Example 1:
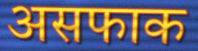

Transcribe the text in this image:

असफाक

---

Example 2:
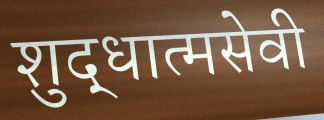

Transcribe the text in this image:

शुद्धात्मसेवी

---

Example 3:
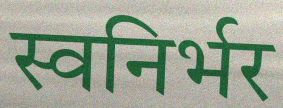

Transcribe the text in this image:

स्वनिर्भर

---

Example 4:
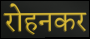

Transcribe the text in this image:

रोहनकर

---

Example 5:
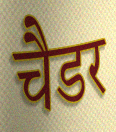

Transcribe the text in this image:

चैडर